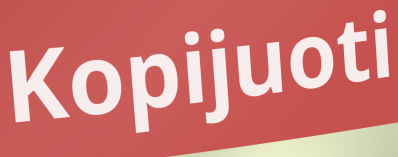
Kopijuoti